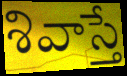
శివాస్తే